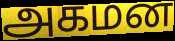
அகமன